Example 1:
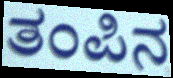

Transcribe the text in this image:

ತಂಪಿನ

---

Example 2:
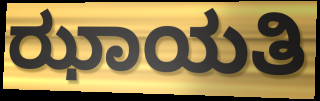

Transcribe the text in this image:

ಝಾಯತಿ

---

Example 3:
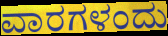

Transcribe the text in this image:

ವಾರಗಳಂದು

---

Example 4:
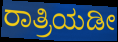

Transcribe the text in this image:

ರಾತ್ರಿಯಡೀ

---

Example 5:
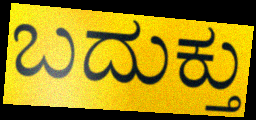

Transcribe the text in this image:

ಬದುಕ್ತು